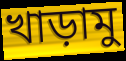
খাড়ামু